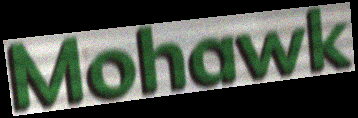
Mohawk